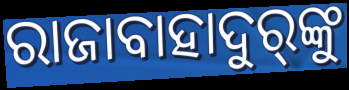
ରାଜାବାହାଦୁର୍‍ଙ୍କୁ